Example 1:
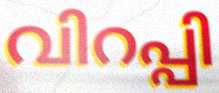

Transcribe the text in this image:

വിറപ്പി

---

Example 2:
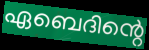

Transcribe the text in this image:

ഏബെദിന്റെ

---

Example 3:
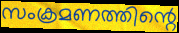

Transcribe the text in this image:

സംക്രമണത്തിന്റെ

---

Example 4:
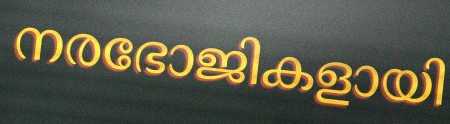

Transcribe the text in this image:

നരഭോജികളായി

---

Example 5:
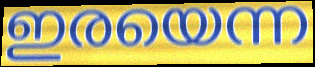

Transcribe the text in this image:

ഇരയെന്ന